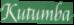
Kutumba